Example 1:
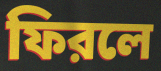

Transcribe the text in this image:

ফিরলে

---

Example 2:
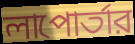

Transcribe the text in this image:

লাপোর্তার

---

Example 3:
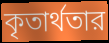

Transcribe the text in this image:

কৃতার্থতার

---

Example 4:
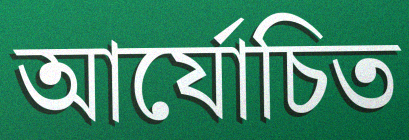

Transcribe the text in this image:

আর্যোচিত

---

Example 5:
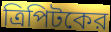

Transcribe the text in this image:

ত্রিপিটকের